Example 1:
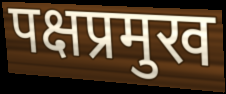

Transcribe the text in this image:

पक्षप्रमुख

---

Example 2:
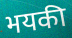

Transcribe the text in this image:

भयकी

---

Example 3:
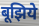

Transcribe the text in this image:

बूझिये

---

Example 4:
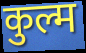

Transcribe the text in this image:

कुल्म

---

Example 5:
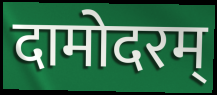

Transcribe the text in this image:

दामोदरम्